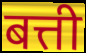
बत्ती